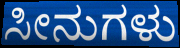
ಸೀನುಗಳು